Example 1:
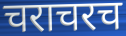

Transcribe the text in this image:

चराचरच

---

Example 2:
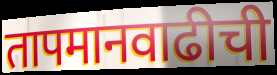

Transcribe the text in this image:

तापमानवाढीची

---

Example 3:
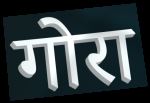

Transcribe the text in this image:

गोरा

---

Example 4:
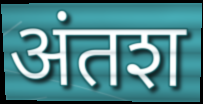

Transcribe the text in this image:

अंतश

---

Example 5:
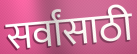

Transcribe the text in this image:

सर्वांसाठी